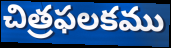
చిత్రఫలకము